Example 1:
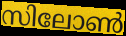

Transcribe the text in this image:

സിലോൺ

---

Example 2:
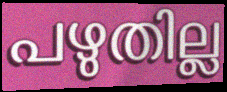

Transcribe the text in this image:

പഴുതില്ല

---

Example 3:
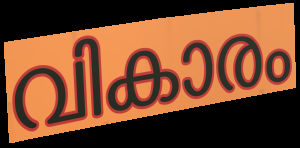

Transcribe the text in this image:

വികാരം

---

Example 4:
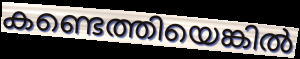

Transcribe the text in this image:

കണ്ടെത്തിയെങ്കിൽ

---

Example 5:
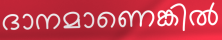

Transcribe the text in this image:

ദാനമാണെങ്കിൽ